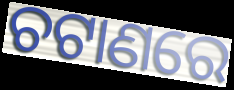
ଚଟାଣରେ